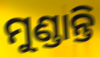
ମୁଣ୍ଡାନ୍ତି